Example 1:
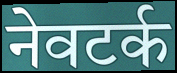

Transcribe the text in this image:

नेवटर्क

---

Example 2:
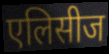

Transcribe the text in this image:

एलिसीज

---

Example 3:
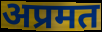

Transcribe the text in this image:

अप्रमत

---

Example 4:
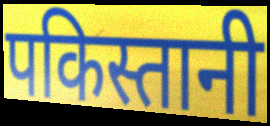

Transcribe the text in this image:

पकिस्तानी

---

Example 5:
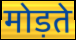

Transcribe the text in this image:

मोड़ते